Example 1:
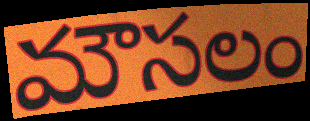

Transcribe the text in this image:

మౌసలం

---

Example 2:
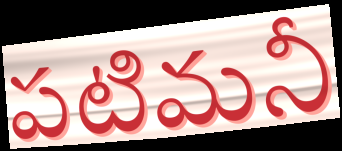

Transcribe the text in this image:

పటిమనీ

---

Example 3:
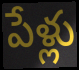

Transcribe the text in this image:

పేళ్లు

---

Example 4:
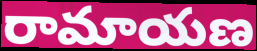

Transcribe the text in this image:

రామాయణ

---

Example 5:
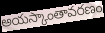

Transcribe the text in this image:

అయస్కాంతావరణం